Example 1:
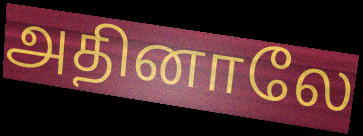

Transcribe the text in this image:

அதினாலே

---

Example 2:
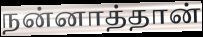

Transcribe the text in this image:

நன்னாத்தான்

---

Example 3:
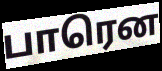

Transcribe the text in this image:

பாரென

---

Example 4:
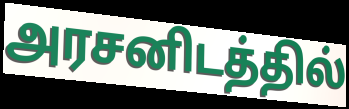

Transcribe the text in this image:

அரசனிடத்தில்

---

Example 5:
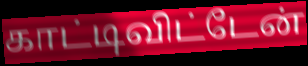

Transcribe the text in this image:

காட்டிவிட்டேன்